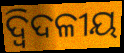
ଦ୍ବିଦଳୀୟ